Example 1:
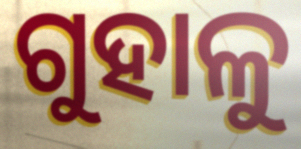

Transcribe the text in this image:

ଗୁହାଳୁ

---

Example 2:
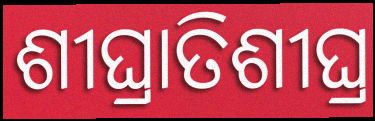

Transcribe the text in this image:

ଶୀଘ୍ରାତିଶୀଘ୍ର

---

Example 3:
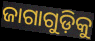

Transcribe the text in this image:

ଜାଗାଗୁଡ଼ିକୁ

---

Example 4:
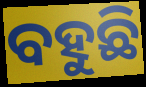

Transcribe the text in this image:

ବହୁଛି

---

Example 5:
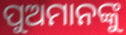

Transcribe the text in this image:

ପୁଅମାନଙ୍କୁ